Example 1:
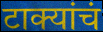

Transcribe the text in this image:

टाक्यांचं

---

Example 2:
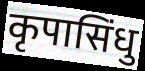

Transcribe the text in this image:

कृपासिंधु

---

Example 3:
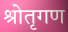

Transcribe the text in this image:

श्रोतृगण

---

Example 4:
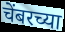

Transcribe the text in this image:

चेंबरच्या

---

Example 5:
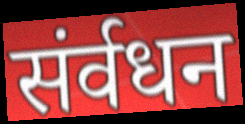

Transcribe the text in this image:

संर्वधन